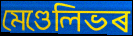
মেণ্ডেলিভৰ